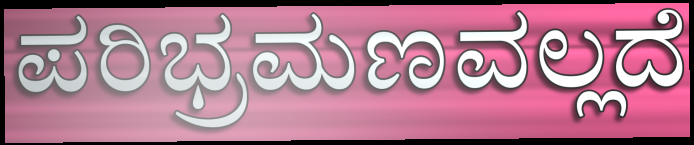
ಪರಿಭ್ರಮಣವಲ್ಲದೆ